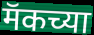
मॅकच्या